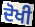
ਦੋਖੀ